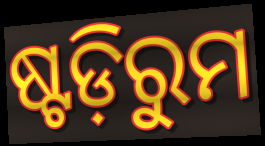
ଷ୍ଟଡ଼ିରୁମ